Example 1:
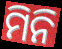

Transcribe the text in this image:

ମିନି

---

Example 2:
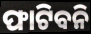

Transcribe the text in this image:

ଫାଟିବନି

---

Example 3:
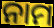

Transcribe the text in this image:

ନାମ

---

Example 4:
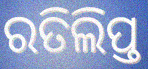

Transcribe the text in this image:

ରତିଲିପ୍ତ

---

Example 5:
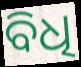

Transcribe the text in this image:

ବିଧି